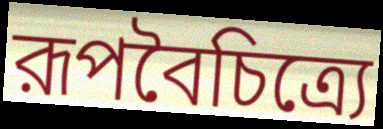
রূপবৈচিত্র্যে